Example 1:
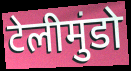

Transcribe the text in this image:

टेलीमुंडो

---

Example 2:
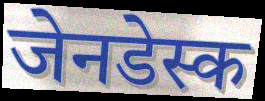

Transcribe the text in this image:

जेनडेस्क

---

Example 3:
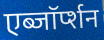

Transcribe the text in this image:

एब्जॉर्प्शन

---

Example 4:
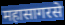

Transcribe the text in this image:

महासागरसे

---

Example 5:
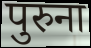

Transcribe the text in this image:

पुरुना